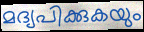
മദ്യപിക്കുകയും